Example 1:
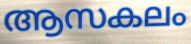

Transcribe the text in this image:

ആസകലം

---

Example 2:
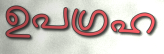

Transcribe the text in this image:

ഉപഗ്രഹ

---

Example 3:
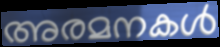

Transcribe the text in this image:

അരമനകൾ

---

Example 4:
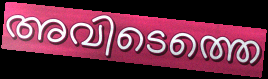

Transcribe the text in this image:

അവിടെത്തെ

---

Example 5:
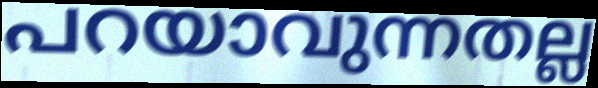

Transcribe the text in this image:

പറയാവുന്നതല്ല